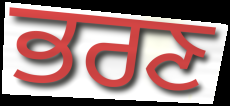
ਭਰਣ